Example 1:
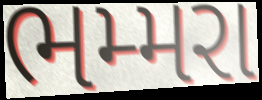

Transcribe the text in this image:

ભમ્મરા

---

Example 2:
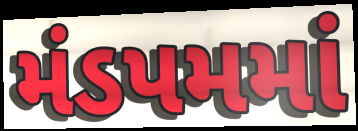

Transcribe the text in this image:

મંડપમમાં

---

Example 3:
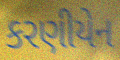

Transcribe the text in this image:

કરણીયેન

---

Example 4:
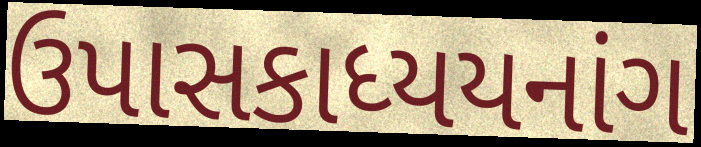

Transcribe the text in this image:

ઉપાસકાધ્યયનાંગ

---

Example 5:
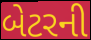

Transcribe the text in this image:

બેટરની